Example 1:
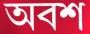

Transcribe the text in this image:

অবশ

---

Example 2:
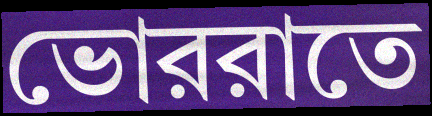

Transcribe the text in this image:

ভোররাতে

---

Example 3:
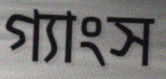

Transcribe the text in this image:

গ্যাংস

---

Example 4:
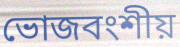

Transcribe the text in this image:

ভোজবংশীয়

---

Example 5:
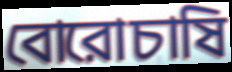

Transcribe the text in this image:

বোরোচাষি